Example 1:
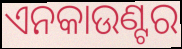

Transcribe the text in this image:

ଏନକାଉଣ୍ଟର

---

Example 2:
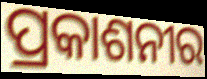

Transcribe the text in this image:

ପ୍ରକାଶନୀର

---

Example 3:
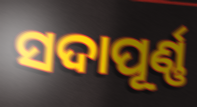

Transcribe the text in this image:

ସଦାପୂର୍ଣ୍ଣ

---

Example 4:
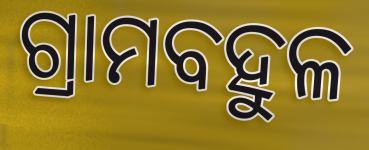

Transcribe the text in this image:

ଗ୍ରାମବହୁଳ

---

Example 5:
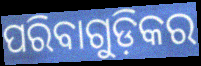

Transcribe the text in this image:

ପରିବାଗୁଡ଼ିକର